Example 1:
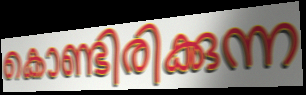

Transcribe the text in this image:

കൊണ്ടിരിക്കുന്ന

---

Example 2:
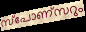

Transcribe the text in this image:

സ്പോണ്സറും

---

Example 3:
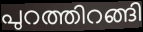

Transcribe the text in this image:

പുറത്തിറങ്ങി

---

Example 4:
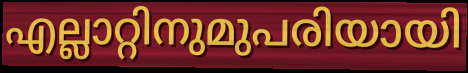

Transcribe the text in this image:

എല്ലാറ്റിനുമുപരിയായി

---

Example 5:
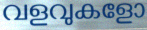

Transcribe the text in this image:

വളവുകളോ